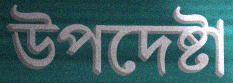
উপদেষ্টা